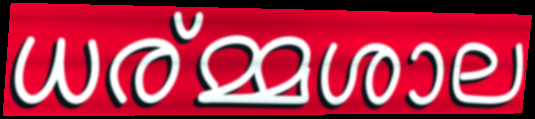
ധര്മ്മശാല